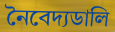
নৈবেদ্যডালি